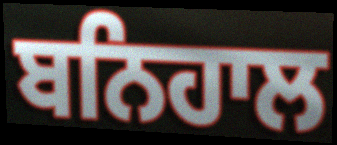
ਬਨਿਹਾਲ